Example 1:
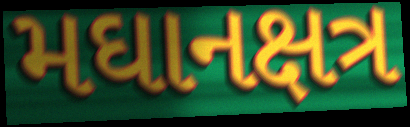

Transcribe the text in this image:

મઘાનક્ષત્ર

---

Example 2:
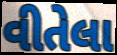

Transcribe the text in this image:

વીતેલા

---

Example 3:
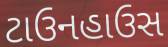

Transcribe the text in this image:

ટાઉનહાઉસ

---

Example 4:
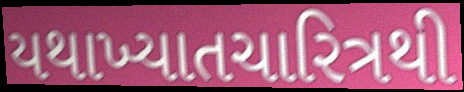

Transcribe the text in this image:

યથાખ્યાતચારિત્રથી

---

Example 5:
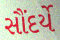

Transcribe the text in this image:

સૌંદર્યે